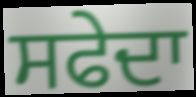
ਸਫੇਦਾ